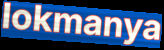
lokmanya